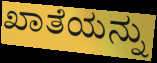
ಖಾತೆಯನ್ನು